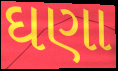
ઘણા